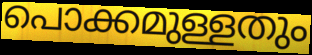
പൊക്കമുള്ളതും